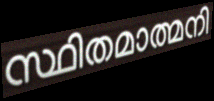
സ്ഥിതമാത്മനി